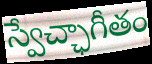
స్వేచ్ఛాగీతం